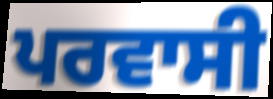
ਪਰਵਾਸੀ